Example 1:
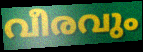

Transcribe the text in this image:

വീരവും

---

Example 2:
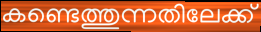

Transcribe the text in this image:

കണ്ടെത്തുന്നതിലേക്ക്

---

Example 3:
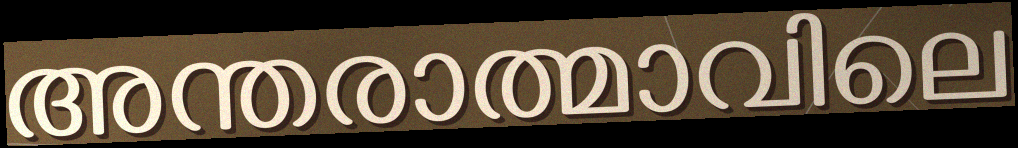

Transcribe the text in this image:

അന്തരാത്മാവിലെ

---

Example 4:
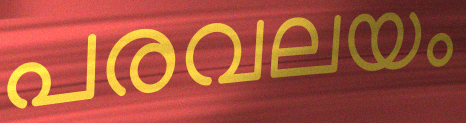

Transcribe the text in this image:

പരവലയം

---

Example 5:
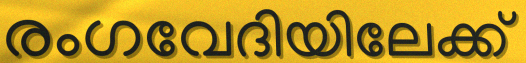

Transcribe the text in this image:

രംഗവേദിയിലേക്ക്